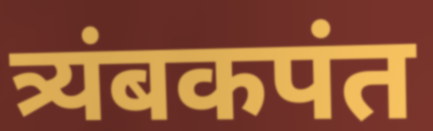
त्र्यंबकपंत